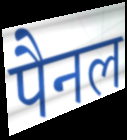
पैनल